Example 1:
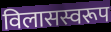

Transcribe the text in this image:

विलासस्वरूप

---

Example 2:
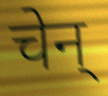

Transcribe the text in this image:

चेन्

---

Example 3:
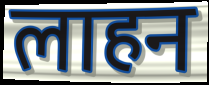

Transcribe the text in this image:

लाहन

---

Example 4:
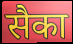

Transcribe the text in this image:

सैका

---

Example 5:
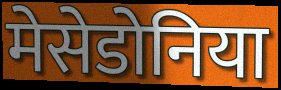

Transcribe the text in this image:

मेसेडोनिया